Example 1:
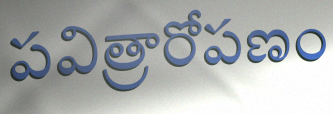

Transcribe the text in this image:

పవిత్రారోపణం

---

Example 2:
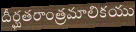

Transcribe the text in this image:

దీర్ఘతరాంత్రమాలికయు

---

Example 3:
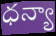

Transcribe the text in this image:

ధన్యా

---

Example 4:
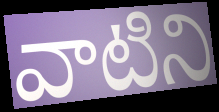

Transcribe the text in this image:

వాటిని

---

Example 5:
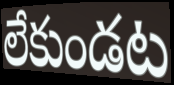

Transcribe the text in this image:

లేకుండట